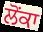
ਲੋਂਕਾ